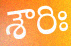
శౌరిః